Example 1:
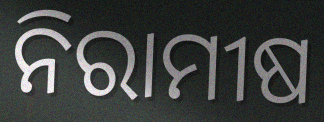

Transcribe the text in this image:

ନିରାମୀଷ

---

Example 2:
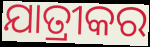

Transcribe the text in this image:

ଯାତ୍ରୀକର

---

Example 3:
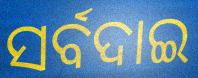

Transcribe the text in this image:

ସର୍ବଦାଇ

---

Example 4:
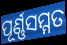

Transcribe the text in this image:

ପୂର୍ଣ୍ଣସମ୍ମତ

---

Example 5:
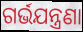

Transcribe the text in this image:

ଗର୍ଭଯନ୍ତ୍ରଣା